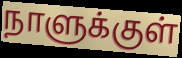
நாளுக்குள்